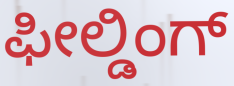
ಫೀಲ್ಡಿಂಗ್